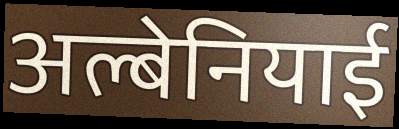
अल्बेनियाई